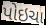
પોઇચા